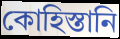
কোহিস্তানি